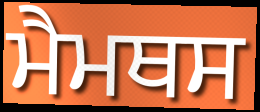
ਮੈਮਥਸ